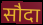
सौदा